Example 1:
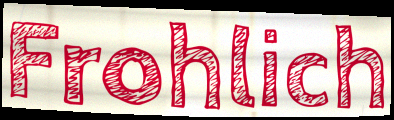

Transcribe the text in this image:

Frohlich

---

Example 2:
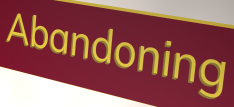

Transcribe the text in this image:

Abandoning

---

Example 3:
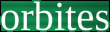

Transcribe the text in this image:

orbites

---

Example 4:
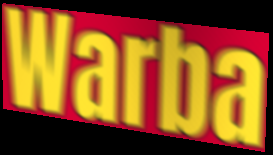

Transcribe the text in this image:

Warba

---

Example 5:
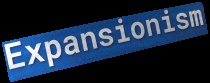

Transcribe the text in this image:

Expansionism